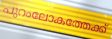
പുറംലോകത്തേക്ക്